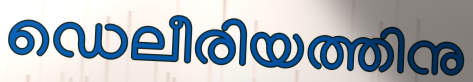
ഡെലീരിയത്തിനു